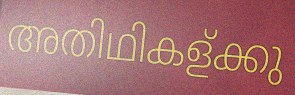
അതിഥികള്ക്കു